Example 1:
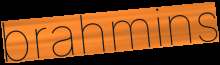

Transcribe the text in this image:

brahmins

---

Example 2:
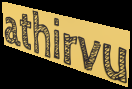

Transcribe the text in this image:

athirvu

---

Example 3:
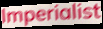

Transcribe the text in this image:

Imperialist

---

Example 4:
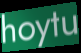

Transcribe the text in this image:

hoytu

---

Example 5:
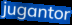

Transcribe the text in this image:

jugantor